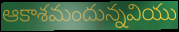
ఆకాశమందున్నవియు